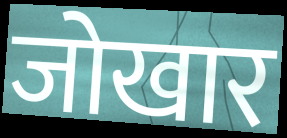
जोखार